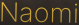
Naomi